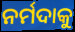
ନର୍ମଦାକୁ